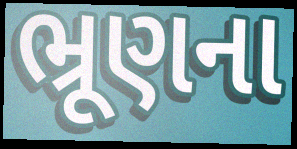
ભ્રૂણના